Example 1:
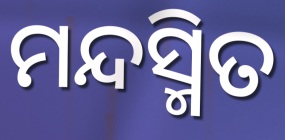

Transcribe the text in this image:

ମନ୍ଦସ୍ମିତ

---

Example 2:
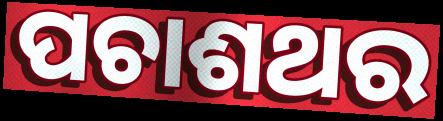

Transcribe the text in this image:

ପଚାଶଥର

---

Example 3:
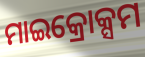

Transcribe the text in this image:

ମାଇକ୍ରୋକ୍ସମ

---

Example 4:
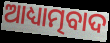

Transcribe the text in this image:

ଆଧ୍ୟାତ୍ମବାଦ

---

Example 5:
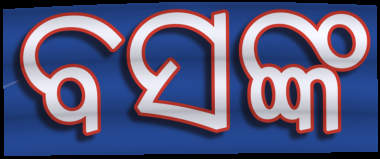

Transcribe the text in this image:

ବସଙ୍କ